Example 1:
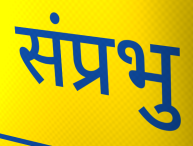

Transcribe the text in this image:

संप्रभु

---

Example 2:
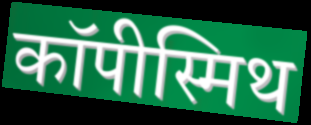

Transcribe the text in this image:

कॉपीस्मिथ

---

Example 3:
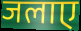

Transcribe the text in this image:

जलाए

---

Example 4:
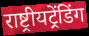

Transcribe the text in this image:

राष्ट्रीयट्रेंडिंग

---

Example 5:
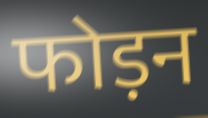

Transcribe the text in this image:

फोड़न